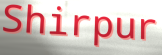
Shirpur